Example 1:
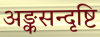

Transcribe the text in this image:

अङ्कसन्दृष्टि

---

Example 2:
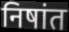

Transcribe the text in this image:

निषांत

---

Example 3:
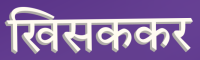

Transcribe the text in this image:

खिसककर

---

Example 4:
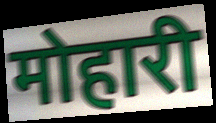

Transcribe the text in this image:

मोहारी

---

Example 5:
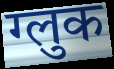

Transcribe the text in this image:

ग्लुक